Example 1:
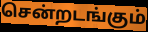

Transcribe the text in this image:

சென்றடங்கும்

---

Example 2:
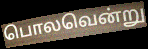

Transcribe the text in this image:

பொலவென்று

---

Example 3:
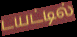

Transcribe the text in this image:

டயட்டில்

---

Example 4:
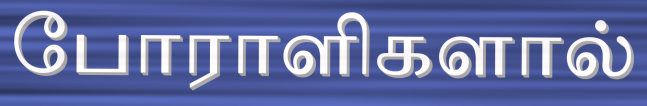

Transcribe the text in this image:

போராளிகளால்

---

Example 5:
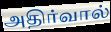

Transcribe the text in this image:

அதிர்வால்